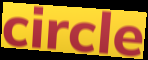
circle